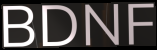
BDNF